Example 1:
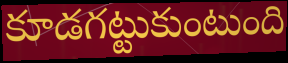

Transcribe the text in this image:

కూడగట్టుకుంటుంది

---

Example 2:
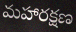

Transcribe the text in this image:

మహారక్షణ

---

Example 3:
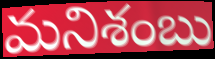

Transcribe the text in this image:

మనిశంబు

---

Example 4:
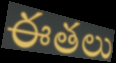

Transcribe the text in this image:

ఈతలు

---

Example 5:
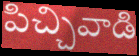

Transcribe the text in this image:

పిచ్చివాడి